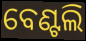
ବେଣ୍ଟଲି